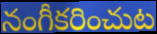
నంగీకరించుట